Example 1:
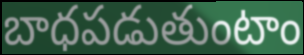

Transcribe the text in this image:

బాధపడుతుంటాం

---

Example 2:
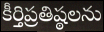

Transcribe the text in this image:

కీర్తిప్రతిష్ఠలను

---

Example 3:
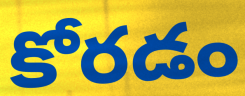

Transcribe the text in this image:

కోరడం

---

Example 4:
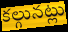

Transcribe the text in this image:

కల్గునట్లు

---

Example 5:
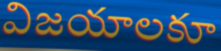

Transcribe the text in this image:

విజయాలకూ